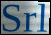
Srl